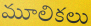
మూలికలు